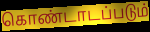
கொண்டாடப்படும்